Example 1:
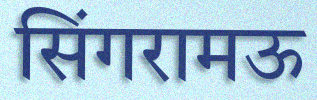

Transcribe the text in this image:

सिंगरामऊ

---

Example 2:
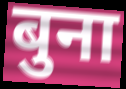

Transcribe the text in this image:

बुना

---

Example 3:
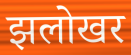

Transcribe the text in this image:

झलोखर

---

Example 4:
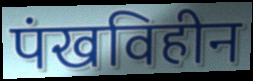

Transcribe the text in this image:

पंखविहीन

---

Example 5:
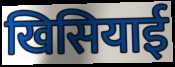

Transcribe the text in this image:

खिसियाई